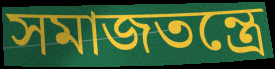
সমাজতন্ত্রে